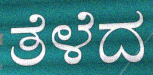
ತೆಳೆದ